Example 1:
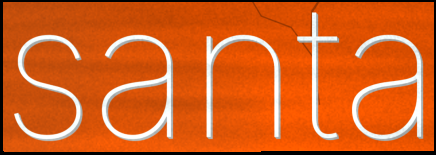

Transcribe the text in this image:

santa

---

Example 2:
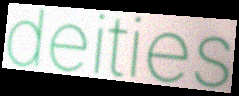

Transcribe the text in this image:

deities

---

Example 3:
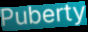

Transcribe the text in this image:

Puberty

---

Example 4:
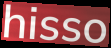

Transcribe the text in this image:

hisso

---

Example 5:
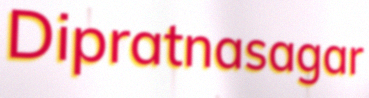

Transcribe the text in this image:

Dipratnasagar